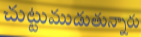
చుట్టుముడుతున్నారు